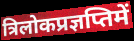
त्रिलोकप्रज्ञप्तिमें